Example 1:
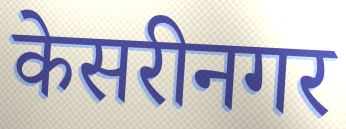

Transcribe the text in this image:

केसरीनगर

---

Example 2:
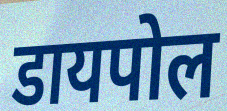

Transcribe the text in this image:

डायपोल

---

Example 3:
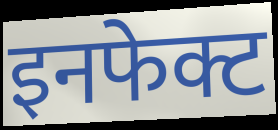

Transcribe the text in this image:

इनफेक्ट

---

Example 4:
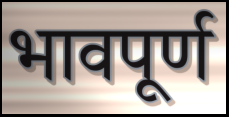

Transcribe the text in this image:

भावपूर्ण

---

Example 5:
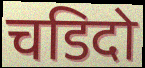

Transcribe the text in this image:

चडिदो